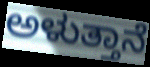
ಅಳುತ್ತಾನೆ